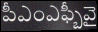
పీఎంఎఫ్బీవై